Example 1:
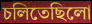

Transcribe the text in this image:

চলিতেছিলো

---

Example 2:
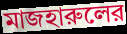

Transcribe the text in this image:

মাজহারুলের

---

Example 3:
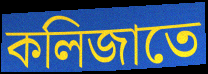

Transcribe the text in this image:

কলিজাতে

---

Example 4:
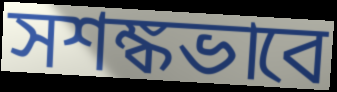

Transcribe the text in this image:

সশঙ্কভাবে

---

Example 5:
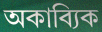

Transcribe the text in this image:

অকাব্যিক